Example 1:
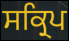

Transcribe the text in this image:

ਸਕ੍ਰਿਪ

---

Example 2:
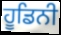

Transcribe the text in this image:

ਹੂਡਿਨੀ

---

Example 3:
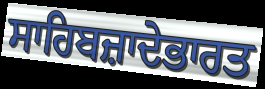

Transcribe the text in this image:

ਸਾਹਿਬਜ਼ਾਦੇਭਾਰਤ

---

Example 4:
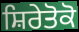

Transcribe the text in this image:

ਸ਼ਿਰੇਤੋਕੋ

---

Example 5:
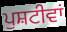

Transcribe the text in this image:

ਪੁਸ਼ਟੀਵਾਂ